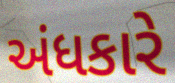
અંધકારે